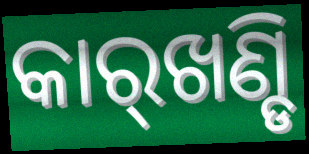
କାର୍‌ଖଣ୍ଡି